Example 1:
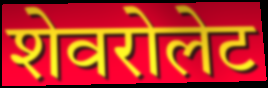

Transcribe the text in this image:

शेवरोलेट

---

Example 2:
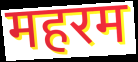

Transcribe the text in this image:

महरम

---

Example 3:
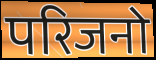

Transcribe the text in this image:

परिजनो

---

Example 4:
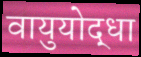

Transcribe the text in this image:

वायुयोद्धा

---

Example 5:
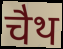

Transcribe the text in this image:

चैथ